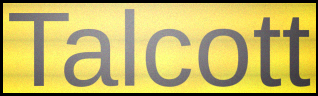
Talcott